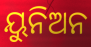
ୟୁନିଅନ